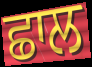
ਛਾਲ